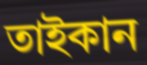
তাইকান